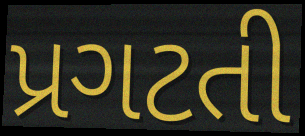
પ્રગટતી